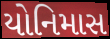
યોનિમાસ